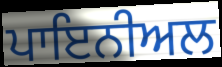
ਪਾਇਨੀਅਲ